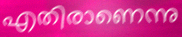
എതിരാണെന്നു